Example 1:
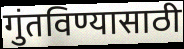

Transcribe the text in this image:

गुंतविण्यासाठी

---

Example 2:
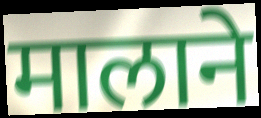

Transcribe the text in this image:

मालाने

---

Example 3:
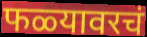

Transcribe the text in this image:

फळ्यावरचं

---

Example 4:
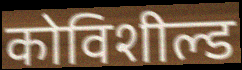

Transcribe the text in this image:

कोविशील्ड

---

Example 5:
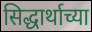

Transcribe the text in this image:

सिद्धार्थाच्या